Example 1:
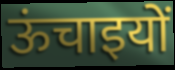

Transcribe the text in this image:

ऊंचाइयों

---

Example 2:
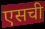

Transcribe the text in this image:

एसची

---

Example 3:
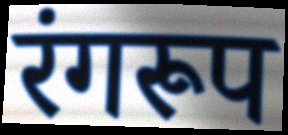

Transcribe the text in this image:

रंगरूप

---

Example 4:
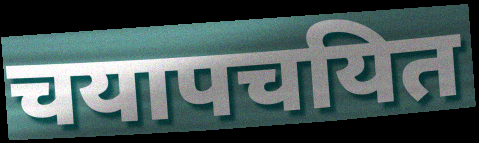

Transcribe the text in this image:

चयापचयित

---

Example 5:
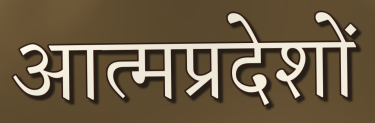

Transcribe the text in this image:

आत्मप्रदेशों